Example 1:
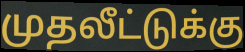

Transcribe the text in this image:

முதலீட்டுக்கு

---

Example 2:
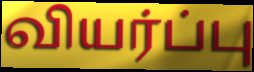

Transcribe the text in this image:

வியர்ப்பு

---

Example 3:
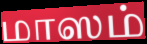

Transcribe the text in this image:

மாஸம்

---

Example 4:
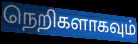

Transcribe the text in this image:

நெறிகளாகவும்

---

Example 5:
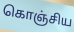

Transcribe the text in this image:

கொஞ்சிய